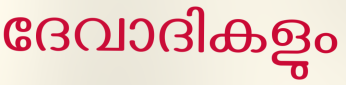
ദേവാദികളും